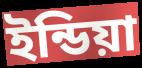
ইন্ডিয়া